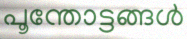
പൂന്തോട്ടങ്ങൾ